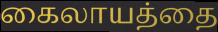
கைலாயத்தை